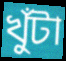
খুঁটা